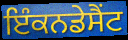
ਇੰਕਨਡੇਸੈਂਟ